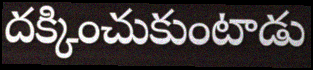
దక్కించుకుంటాడు